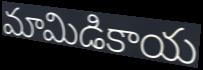
మామిడికాయ